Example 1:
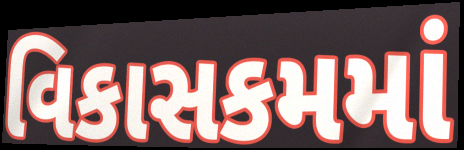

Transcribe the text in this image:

વિકાસકમમાં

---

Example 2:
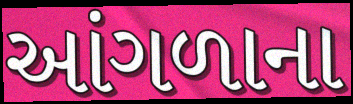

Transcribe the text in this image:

આંગળાના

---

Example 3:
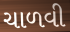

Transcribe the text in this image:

ચાળવી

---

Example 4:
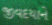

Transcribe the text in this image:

જીવદયાને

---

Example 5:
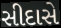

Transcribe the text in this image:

સીદાસે